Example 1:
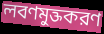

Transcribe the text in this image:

লবণমুক্তকরণ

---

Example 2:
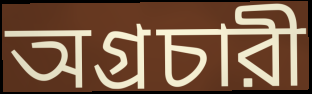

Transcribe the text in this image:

অগ্রচারী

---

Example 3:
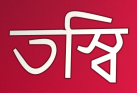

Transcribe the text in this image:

তস্বি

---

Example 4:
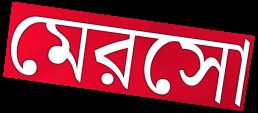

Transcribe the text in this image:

মেরসো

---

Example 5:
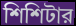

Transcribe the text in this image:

শিশিটার